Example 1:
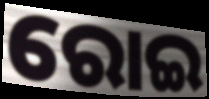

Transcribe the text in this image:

ରୋଇ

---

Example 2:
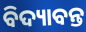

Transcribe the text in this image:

ବିଦ୍ୟାବନ୍ତ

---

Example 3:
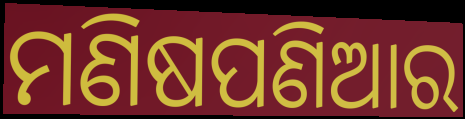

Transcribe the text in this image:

ମଣିଷପଣିଆର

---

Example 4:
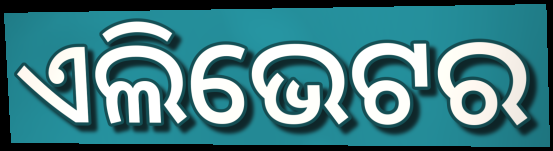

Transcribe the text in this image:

ଏଲିଭେଟର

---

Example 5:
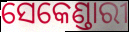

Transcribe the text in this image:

ସେକେଣ୍ଡାରୀ